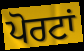
ਪੋਰਟਾਂ